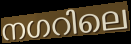
നഗറിലെ